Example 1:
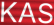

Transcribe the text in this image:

KAS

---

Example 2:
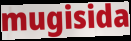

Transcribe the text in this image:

mugisida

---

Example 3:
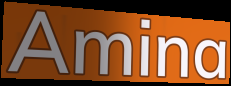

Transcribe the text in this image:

Amina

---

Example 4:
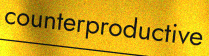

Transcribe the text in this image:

counterproductive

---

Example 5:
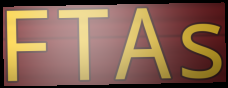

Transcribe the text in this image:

FTAs